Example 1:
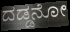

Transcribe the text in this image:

ದಡ್ಡನೋ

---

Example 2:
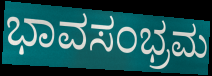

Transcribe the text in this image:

ಭಾವಸಂಭ್ರಮ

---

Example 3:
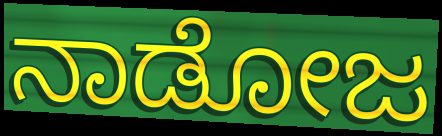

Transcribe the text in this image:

ನಾಡೋಜ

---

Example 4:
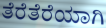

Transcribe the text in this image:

ತೆರೆತೆರೆಯಾಗಿ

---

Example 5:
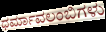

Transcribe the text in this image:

ಧರ್ಮಾವಲಂಬಿಗಳು